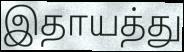
இதாயத்து